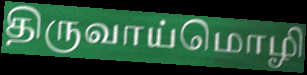
திருவாய்மொழி